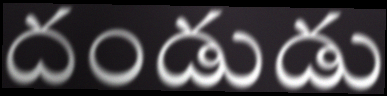
దండుడు